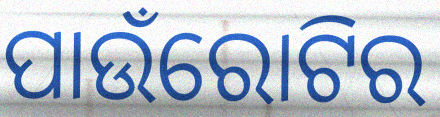
ପାଉଁରୋଟିର